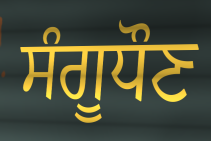
ਸੰਗੂਧੌਣ